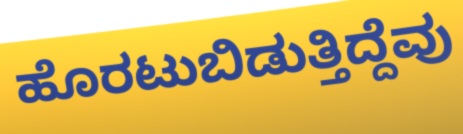
ಹೊರಟುಬಿಡುತ್ತಿದ್ದೆವು